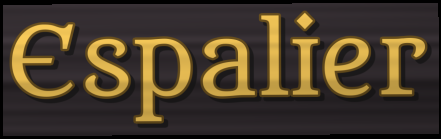
Espalier